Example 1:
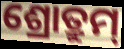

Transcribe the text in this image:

ଶ୍ରୋତ୍ରୁମ୍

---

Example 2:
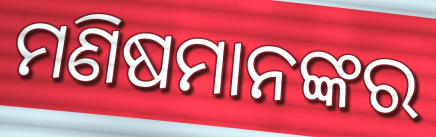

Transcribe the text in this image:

ମଣିଷମାନଙ୍କର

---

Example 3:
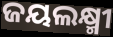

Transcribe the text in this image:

ଜୟଲକ୍ଷ୍ମୀ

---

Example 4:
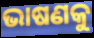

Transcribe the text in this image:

ଭାଷଣକୁ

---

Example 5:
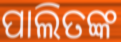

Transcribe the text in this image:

ପାଲିତଙ୍କ